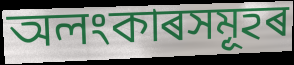
অলংকাৰসমূহৰ